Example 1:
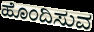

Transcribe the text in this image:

ಹೊಂದಿಸುವ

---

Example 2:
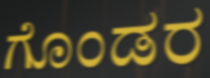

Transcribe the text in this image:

ಗೊಂಡರ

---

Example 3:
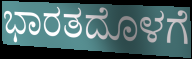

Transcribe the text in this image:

ಭಾರತದೊಳಗೆ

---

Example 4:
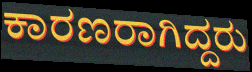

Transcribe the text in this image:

ಕಾರಣರಾಗಿದ್ದರು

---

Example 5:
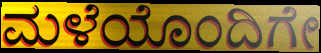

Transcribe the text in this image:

ಮಳೆಯೊಂದಿಗೇ